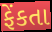
ફેંકતા